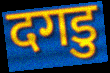
दगडु